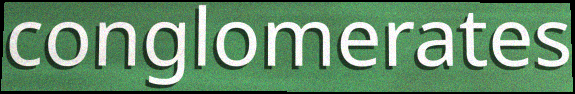
conglomerates